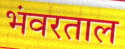
भंवरताल